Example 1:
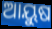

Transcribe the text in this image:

ଆୟୁଷ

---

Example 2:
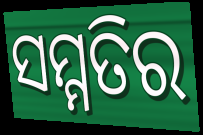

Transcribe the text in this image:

ସମ୍ମତିର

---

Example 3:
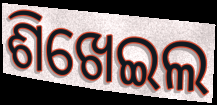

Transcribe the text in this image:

ଶିଖେଇଲ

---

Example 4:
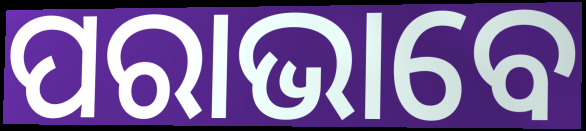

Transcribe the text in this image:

ପରାଭାବେ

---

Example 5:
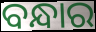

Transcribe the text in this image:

ବନ୍ଧାର